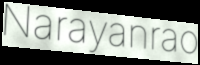
Narayanrao